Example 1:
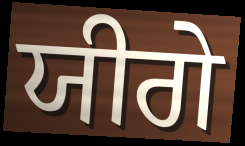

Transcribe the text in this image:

ਯੀਗੇ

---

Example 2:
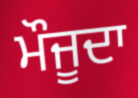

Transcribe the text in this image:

ਮੌਜੂਦਾ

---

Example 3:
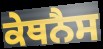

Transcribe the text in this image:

ਕੇਥਨੈਸ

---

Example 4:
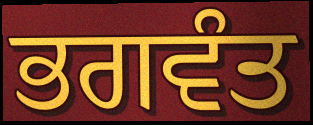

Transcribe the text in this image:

ਭਗਵੰਤ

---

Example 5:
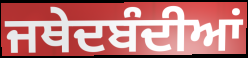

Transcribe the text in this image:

ਜਥੇਦਬੰਦੀਆਂ